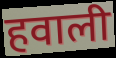
हवाली